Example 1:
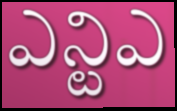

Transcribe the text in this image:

ఎన్టిఎ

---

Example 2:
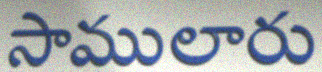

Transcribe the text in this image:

సాములారు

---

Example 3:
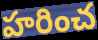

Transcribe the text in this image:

హరించ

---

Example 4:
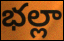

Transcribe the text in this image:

భల్లా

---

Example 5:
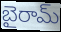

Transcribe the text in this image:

బైరామ్